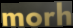
morh